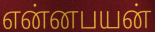
என்னபயன்